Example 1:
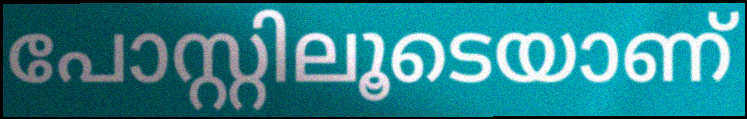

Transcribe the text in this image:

പോസ്റ്റിലൂടെയാണ്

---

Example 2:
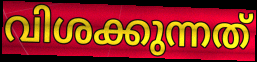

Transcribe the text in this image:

വിശക്കുന്നത്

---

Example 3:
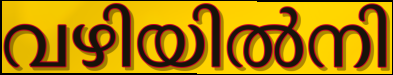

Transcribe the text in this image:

വഴിയിൽനി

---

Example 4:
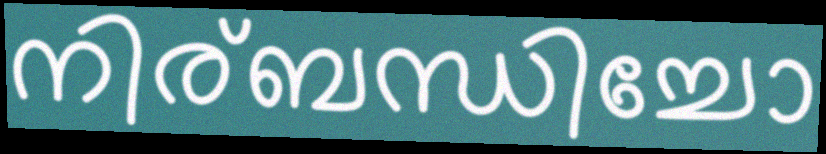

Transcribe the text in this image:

നിര്ബന്ധിച്ചോ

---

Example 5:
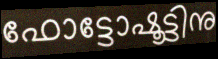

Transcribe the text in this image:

ഫോട്ടോഷൂട്ടിനു